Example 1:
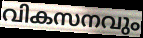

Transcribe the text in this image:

വികസനവും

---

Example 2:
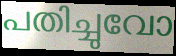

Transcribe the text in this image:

പതിച്ചുവോ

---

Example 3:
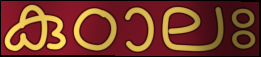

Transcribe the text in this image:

കുഠാലഃ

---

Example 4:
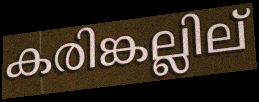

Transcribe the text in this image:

കരിങ്കല്ലില്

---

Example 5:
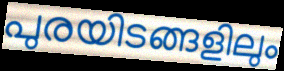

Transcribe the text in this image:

പുരയിടങ്ങളിലും